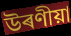
উৰণীয়া